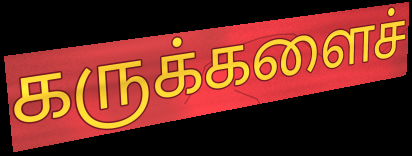
கருக்களைச்